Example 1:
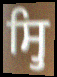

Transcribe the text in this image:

ਸ੍ਤਿ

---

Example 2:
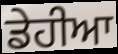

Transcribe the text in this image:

ਡੇਹੀਆ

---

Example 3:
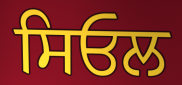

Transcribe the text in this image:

ਸਿਓਲ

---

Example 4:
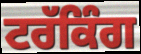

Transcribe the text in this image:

ਟਰੱਕਿੰਗ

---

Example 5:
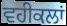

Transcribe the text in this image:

ਵਹੀਕਲਾਂ